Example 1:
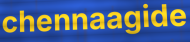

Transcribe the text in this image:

chennaagide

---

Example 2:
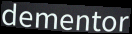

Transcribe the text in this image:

dementor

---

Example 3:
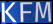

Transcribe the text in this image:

KFM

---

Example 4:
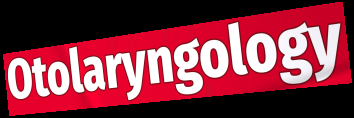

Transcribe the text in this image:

Otolaryngology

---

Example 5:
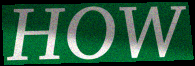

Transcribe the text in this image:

HOW